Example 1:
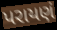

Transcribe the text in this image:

પરાયણં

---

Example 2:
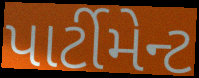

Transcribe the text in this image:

પાર્ટીમેન્ટ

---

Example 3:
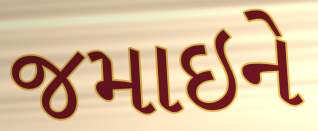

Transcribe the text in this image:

જમાઇને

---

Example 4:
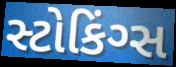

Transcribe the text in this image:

સ્ટોકિંગ્સ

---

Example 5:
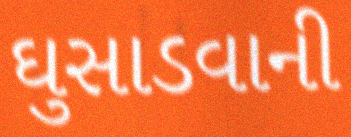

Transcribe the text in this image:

ઘુસાડવાની